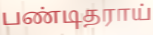
பண்டிதராய்